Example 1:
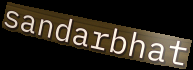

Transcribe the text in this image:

sandarbhat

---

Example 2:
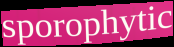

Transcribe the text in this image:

sporophytic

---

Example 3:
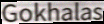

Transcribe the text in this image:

Gokhalas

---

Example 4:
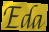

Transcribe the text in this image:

Eda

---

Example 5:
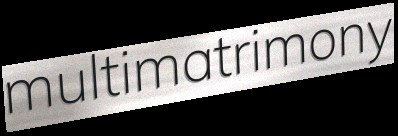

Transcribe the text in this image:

multimatrimony